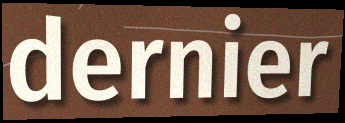
dernier